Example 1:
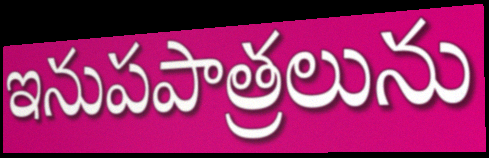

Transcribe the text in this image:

ఇనుపపాత్రలును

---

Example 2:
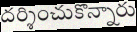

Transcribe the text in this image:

దర్శించుకొన్నారు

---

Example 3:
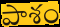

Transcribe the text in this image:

పాశం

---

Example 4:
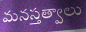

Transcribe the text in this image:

మనస్తత్వాలు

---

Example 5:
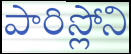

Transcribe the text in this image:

పారిస్లోని